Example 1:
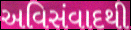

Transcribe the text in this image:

અવિસંવાદથી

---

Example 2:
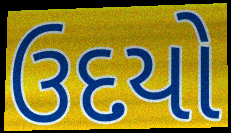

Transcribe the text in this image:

ઉદયો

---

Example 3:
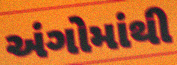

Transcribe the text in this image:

અંગોમાંથી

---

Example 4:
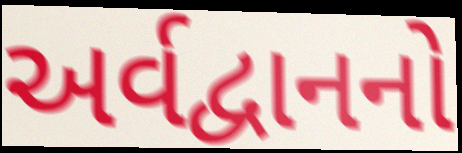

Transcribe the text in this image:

અર્વદ્વાનનો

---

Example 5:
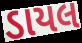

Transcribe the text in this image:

ડાયલ